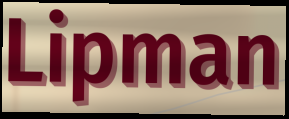
Lipman